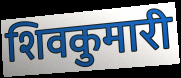
शिवकुमारी